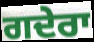
ਗਦੇਰਾ